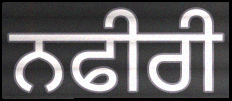
ਨਫੀਰੀ